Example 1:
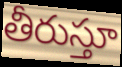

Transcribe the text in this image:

తీరుస్తూ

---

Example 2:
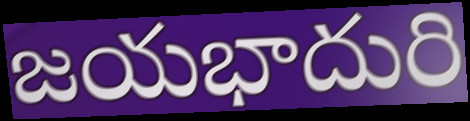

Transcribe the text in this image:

జయభాదురి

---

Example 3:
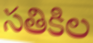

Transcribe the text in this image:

సతికిల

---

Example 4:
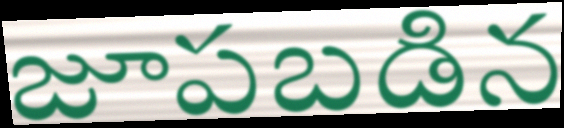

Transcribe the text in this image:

జూపబడిన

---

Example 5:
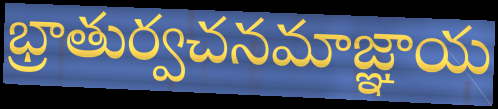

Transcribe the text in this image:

భ్రాతుర్వచనమాజ్ఞాయ